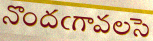
నొందఁగావలసె